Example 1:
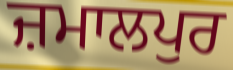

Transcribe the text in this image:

ਜ਼ਮਾਲਪੁਰ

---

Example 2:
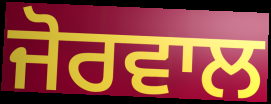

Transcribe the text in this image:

ਜੋਰਵਾਲ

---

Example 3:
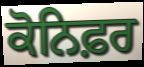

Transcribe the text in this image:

ਕੋਨਿਫ਼ਰ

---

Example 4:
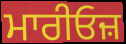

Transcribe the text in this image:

ਮਾਰੀਓਜ਼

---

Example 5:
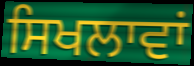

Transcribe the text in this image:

ਸਿਖਲਾਵਾਂ